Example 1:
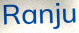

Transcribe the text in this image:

Ranju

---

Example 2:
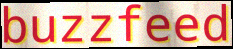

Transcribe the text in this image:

buzzfeed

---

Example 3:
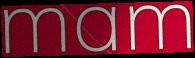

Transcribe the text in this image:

mam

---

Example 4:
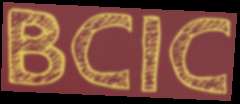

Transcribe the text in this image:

BCIC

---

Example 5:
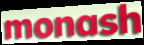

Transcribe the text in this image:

monash